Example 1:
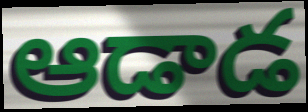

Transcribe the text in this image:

ఆడాడ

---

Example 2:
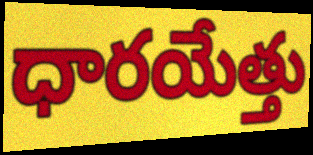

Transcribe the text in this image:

ధారయేత్తు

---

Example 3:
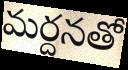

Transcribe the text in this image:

మర్దనతో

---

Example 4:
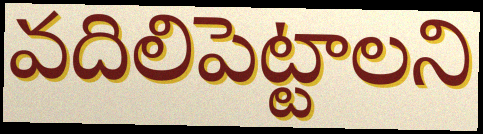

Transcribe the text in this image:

వదిలిపెట్టాలని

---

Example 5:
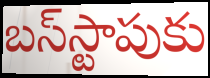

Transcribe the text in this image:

బస్‌స్టాపుకు